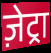
ज़ेट्रा